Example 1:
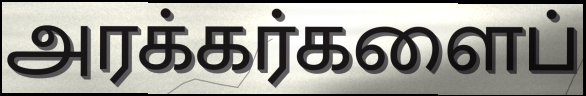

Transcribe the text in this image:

அரக்கர்களைப்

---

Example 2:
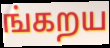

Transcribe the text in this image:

ங்கறய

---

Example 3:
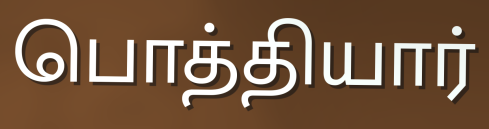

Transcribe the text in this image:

பொத்தியார்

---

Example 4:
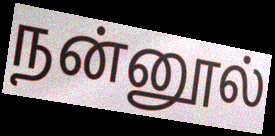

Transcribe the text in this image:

நன்னூல்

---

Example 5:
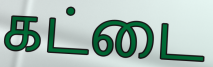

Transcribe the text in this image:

கட்டை